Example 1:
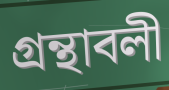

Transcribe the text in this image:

গ্রন্থাবলী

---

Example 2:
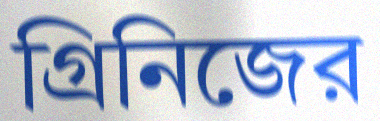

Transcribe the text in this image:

গ্রিনিজের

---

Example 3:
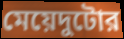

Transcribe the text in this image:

মেয়েদুটোর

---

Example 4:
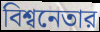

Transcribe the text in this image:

বিশ্বনেতার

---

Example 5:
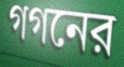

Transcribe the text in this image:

গগনের